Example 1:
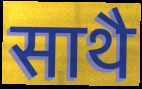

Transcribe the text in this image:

साथै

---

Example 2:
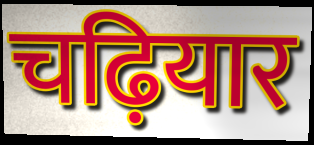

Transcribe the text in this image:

चढ़ियार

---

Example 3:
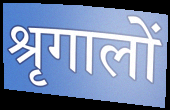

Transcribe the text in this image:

श्रृगालों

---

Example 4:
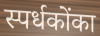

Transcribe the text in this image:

स्पर्धकोंका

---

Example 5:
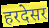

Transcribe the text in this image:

हरदेसर